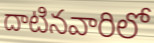
దాటినవారిలో